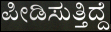
ಪೀಡಿಸುತ್ತಿದ್ದೆ